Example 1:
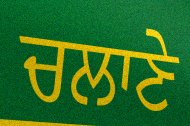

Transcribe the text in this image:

ਚਲਾਣੇ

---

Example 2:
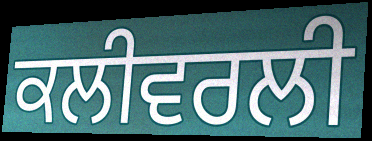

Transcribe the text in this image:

ਕਲੀਵਰਲੀ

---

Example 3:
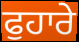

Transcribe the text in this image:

ਫੁਹਾਰੇ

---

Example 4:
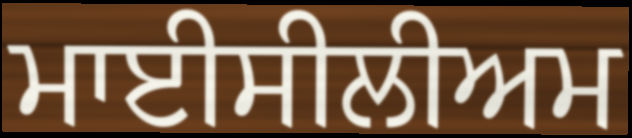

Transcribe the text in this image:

ਮਾਈਸੀਲੀਅਮ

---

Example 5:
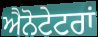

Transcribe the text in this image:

ਐਨੋਟੇਟਰਾਂ